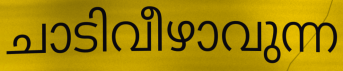
ചാടിവീഴാവുന്ന